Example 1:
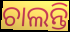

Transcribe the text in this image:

ଚାଲନ୍ତି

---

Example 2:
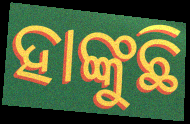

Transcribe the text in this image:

ହାଙ୍କୁଛି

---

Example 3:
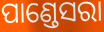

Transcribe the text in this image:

ପାଣ୍ଡେସରା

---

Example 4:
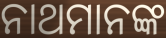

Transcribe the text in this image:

ନାଥମାନଙ୍କ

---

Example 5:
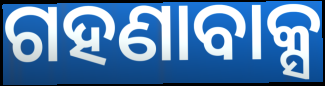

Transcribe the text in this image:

ଗହଣାବାକ୍ସ